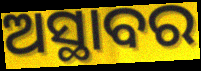
ଅସ୍ଥାବର